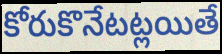
కోరుకొనేటట్లయితే